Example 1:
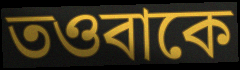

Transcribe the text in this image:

তওবাকে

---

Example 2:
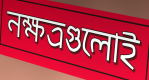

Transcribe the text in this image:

নক্ষত্রগুলোই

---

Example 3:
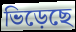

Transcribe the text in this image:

ভিড়েছে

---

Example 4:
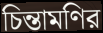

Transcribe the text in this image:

চিন্তামণির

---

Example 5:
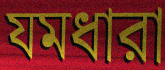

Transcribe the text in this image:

যমধারা